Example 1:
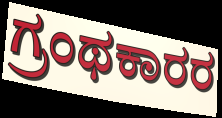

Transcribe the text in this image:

ಗ್ರಂಥಕಾರರ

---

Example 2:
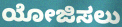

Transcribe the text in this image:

ಯೋಜಿಸಲು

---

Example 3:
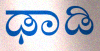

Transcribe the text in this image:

ಢಾಡಿ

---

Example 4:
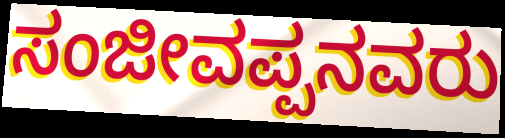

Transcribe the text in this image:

ಸಂಜೀವಪ್ಪನವರು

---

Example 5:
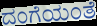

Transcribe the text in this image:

ದಂಗೆಯಂತೆ